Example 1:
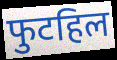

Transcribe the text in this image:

फुटहिल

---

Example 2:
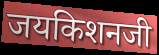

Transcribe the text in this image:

जयकिशनजी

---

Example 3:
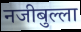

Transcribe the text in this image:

नजीबुल्ला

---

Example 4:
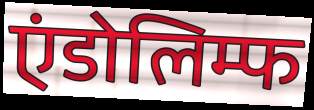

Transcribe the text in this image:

एंडोलिम्फ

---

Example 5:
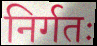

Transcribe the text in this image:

निर्गतः